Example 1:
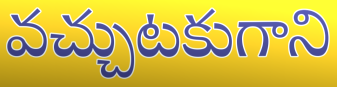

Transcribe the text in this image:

వచ్చుటకుగాని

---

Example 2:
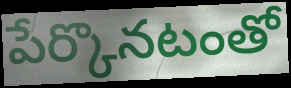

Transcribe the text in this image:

పేర్కొనటంతో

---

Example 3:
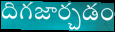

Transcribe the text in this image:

దిగజార్చడం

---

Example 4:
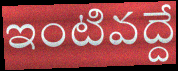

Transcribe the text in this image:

ఇంటివద్దే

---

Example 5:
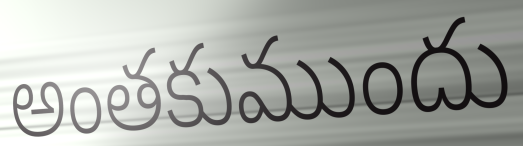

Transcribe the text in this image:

అంతకుముందు